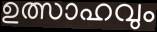
ഉത്സാഹവും